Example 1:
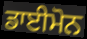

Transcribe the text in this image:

ਡਾਈਮੋਨ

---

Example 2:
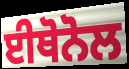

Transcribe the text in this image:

ਈਥੋਨੋਲ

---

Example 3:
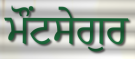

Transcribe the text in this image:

ਮੌਂਟਸੇਗੁਰ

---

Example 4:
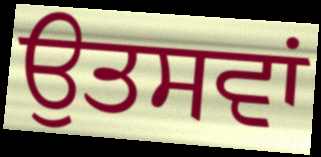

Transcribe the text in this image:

ਉਤਸਵਾਂ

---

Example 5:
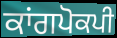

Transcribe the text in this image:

ਕਾਂਗਪੋਕਪੀ